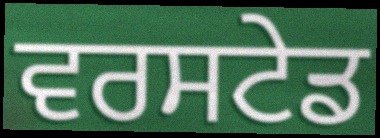
ਵਰਸਟੇਡ